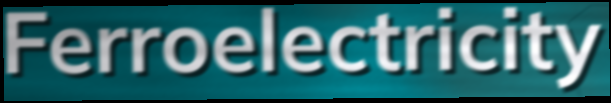
Ferroelectricity